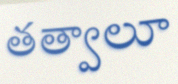
తత్వాలూ